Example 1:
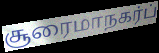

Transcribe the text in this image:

சூரைமாநகர்ப்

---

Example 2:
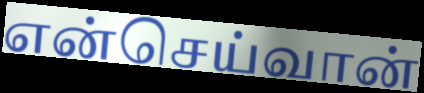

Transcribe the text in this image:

என்செய்வான்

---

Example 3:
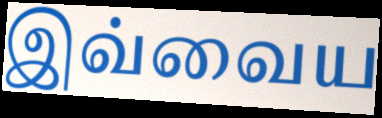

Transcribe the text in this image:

இவ்வைய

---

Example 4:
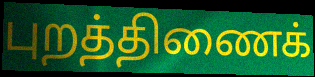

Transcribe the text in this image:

புறத்திணைக்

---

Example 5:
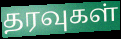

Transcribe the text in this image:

தரவுகள்